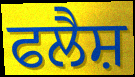
ਫਲੈਸ਼